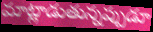
మాట్లాడుతున్నప్పుడూ